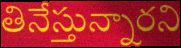
తినేస్తున్నారని